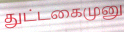
துட்டகைமுனு